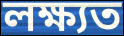
লক্ষ্যত